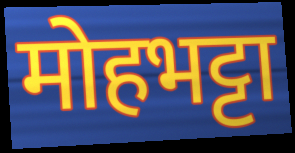
मोहभट्टा